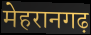
मेहरानगढ़